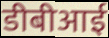
डीबीआई